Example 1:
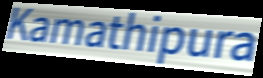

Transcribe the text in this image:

Kamathipura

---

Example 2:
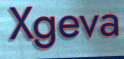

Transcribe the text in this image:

Xgeva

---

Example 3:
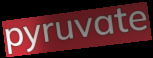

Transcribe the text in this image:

pyruvate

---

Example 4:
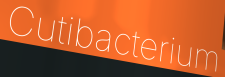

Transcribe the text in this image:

Cutibacterium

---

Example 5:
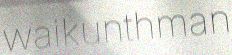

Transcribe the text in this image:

waikunthman